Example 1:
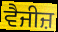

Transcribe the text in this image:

ਵੈਜੀਜ਼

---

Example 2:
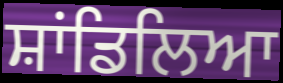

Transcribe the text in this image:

ਸ਼ਾਂਡਿਲਿਆ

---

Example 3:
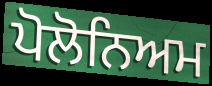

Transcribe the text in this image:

ਪੋਲੋਨਿਅਮ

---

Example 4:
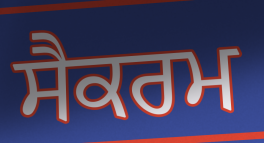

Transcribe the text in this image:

ਸੈਕਰਮ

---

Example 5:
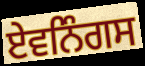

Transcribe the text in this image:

ਏਵਨਿੰਗਸ